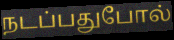
நடப்பதுபோல்